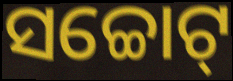
ସଚ୍ଚୋଟ୍